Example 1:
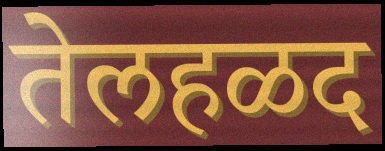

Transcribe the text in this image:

तेलहळद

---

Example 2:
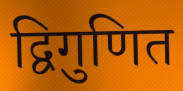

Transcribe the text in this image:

द्विगुणित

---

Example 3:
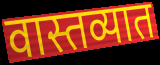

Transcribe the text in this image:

वास्तव्यात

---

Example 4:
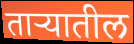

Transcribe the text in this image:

ताऱ्यातील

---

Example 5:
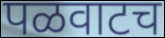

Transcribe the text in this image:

पळवाटच